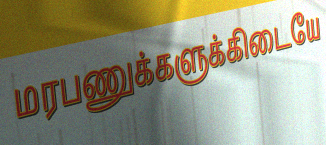
மரபணுக்களுக்கிடையே